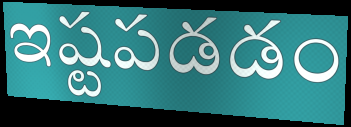
ఇష్టపడడం